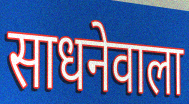
साधनेवाला